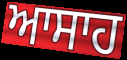
ਆਸਾਹ